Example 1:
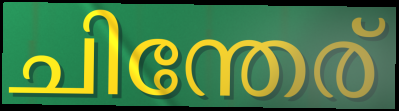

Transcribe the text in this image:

ചിന്തേര്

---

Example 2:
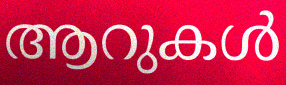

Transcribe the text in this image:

ആറുകൾ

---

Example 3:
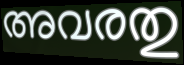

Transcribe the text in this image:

അവരതു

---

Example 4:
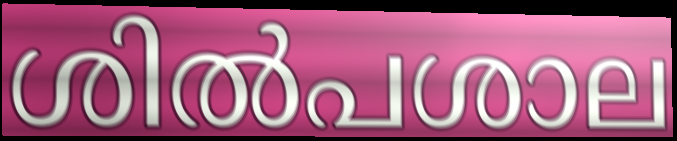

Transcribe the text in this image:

ശിൽപശാല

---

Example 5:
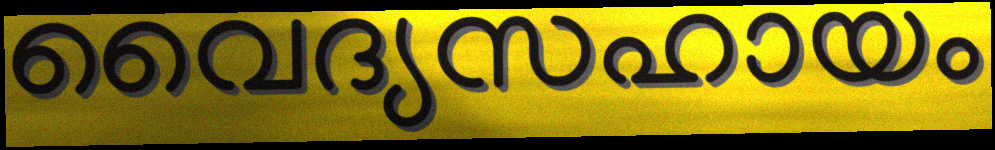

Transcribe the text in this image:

വൈദ്യസഹായം